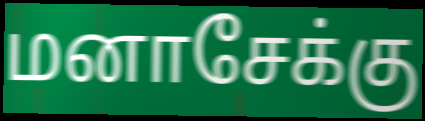
மனாசேக்கு